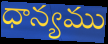
ధాన్యము